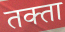
तक्ता